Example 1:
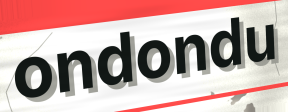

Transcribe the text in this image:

ondondu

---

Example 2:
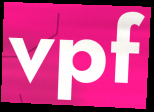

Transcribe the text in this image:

vpf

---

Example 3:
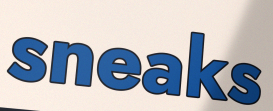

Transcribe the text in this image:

sneaks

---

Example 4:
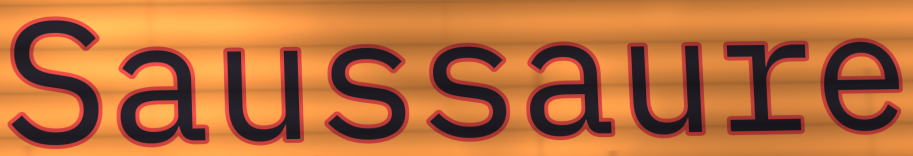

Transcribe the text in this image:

Saussaure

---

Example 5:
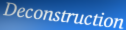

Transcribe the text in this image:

Deconstruction